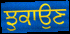
ਝੁਕਾਉਣ